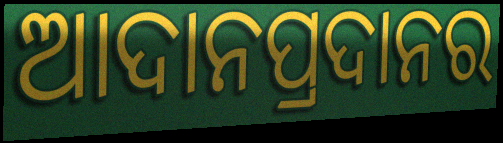
ଆଦାନପ୍ରଦାନର